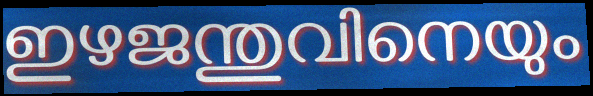
ഇഴജന്തുവിനെയും